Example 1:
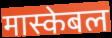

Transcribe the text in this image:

मास्केबल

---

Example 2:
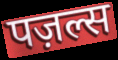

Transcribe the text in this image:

पज़ल्स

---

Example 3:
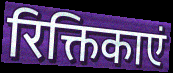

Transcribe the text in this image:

रिक्तिकाएं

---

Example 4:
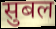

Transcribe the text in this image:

सुबल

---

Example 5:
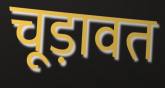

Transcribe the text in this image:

चूड़ावत